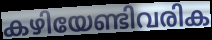
കഴിയേണ്ടിവരിക